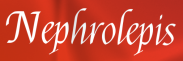
Nephrolepis